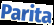
Parita